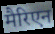
मैरिएन